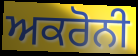
ਅਕਰੋਨੀ